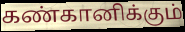
கண்கானிக்கும்